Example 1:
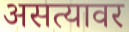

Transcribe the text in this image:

असत्यावर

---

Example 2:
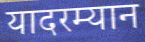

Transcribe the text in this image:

यादरम्यान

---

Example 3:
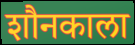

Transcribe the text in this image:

शौनकाला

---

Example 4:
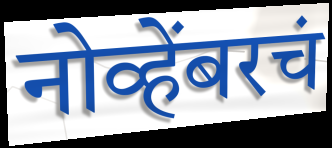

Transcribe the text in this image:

नोव्हेंबरचं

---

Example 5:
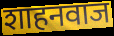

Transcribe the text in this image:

शाहनवाज